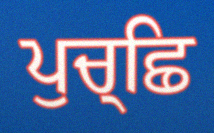
ਪੁਚ੍ਛਿ